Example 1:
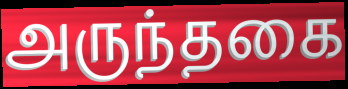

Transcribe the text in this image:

அருந்தகை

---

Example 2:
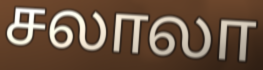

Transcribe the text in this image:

சலாலா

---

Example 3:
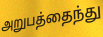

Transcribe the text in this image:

அறுபத்தைந்து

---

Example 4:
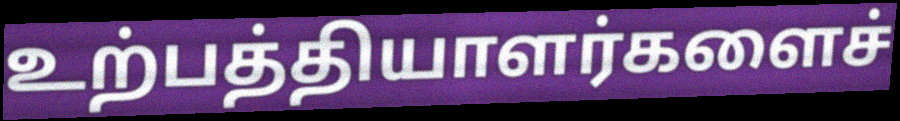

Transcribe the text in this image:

உற்பத்தியாளர்களைச்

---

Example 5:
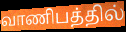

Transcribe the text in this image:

வாணிபத்தில்